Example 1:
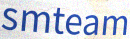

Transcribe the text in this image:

smteam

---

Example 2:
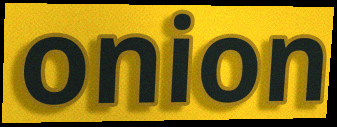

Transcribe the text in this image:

onion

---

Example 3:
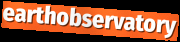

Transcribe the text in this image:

earthobservatory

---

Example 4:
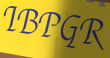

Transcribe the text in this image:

IBPGR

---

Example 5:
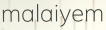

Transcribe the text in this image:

malaiyem